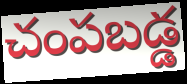
చంపబడ్డ